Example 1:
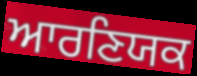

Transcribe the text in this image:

ਆਰਣਿਯਕ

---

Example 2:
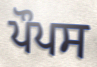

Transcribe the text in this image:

ਪੌਪਸ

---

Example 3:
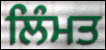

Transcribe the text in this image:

ਲਿੰਮਤ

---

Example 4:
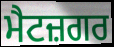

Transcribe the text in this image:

ਮੈਟਜ਼ਗਰ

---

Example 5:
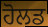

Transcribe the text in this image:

ਹੋਲਡ